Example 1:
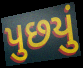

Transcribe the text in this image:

પુછયું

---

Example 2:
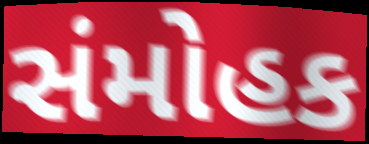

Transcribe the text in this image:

સંમોહક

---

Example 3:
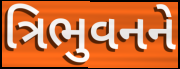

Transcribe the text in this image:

ત્રિભુવનને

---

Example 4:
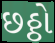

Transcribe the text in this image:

છઠ્ઠો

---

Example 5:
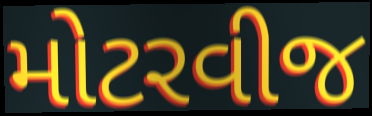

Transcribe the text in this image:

મોટરવીજ